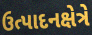
ઉત્પાદનક્ષેત્રે